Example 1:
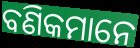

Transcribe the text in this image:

ବଣିକମାନେ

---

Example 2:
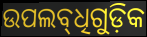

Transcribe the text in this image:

ଉପଲବ୍‌ଧିଗୁଡ଼ିକ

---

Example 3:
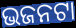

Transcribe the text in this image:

ଭଜନଟା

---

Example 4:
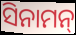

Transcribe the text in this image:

ସିନାମନ୍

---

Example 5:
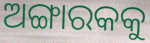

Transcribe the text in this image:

ଅଙ୍ଗାରକକୁ